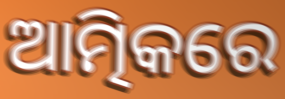
ଆତ୍ମିକରେ